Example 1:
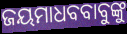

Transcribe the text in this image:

ଜୟମାଧବବାବୁଙ୍କୁ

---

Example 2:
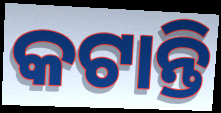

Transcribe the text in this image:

କଟାନ୍ତି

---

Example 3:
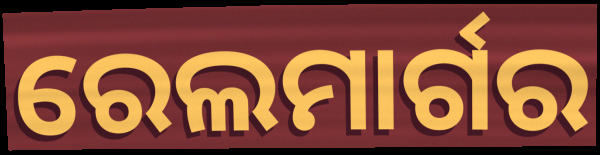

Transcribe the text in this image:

ରେଲମାର୍ଗର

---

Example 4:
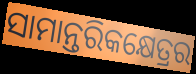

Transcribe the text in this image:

ସାମାନ୍ତରିକକ୍ଷେତ୍ରର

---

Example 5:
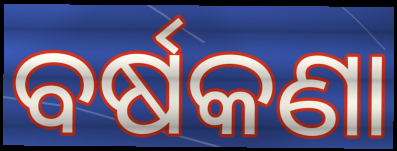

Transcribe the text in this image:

ବର୍ଷକଣା